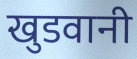
खुडवानी